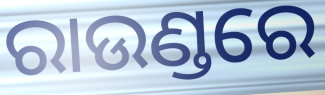
ରାଉଣ୍ଡରେ